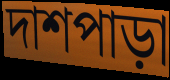
দাশপাড়া